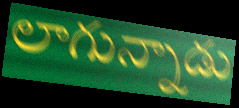
లాగున్నాడు